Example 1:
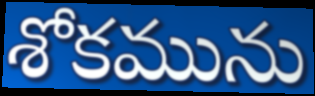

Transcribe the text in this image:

శోకమును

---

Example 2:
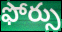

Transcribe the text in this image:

ఫోర్సు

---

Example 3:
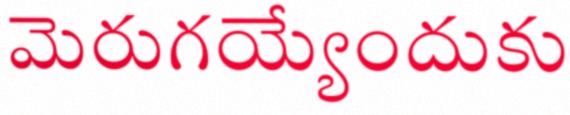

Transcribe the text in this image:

మెరుగయ్యేందుకు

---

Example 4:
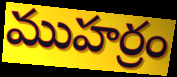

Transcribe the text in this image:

ముహర్రం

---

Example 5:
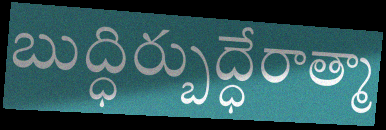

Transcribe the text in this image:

బుద్ధిర్బుద్ధేరాత్మా